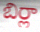
బిర్లా